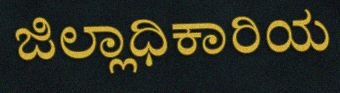
ಜಿಲ್ಲಾಧಿಕಾರಿಯ